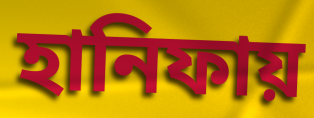
হানিফায়